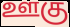
ஊகு